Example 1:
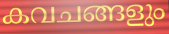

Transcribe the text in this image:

കവചങ്ങളും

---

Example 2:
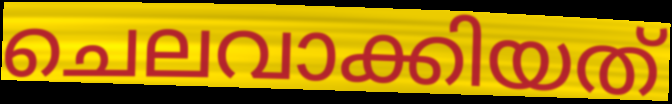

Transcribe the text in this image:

ചെലവാക്കിയത്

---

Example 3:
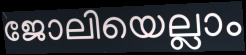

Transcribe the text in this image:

ജോലിയെല്ലാം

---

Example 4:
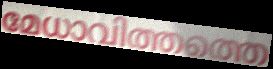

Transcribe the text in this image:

മേധാവിത്തത്തെ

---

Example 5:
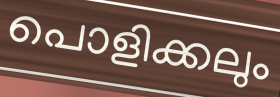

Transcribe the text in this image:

പൊളിക്കലും